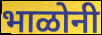
भाळोनी